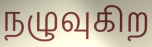
நழுவுகிற